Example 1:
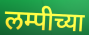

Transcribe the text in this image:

लम्पीच्या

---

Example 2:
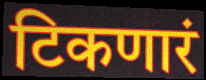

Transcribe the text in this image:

टिकणारं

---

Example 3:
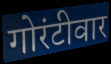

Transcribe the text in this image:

गोरंटीवार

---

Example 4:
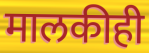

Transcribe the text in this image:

मालकीही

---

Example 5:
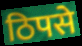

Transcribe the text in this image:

ठिपसे